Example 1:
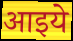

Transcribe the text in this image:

आइये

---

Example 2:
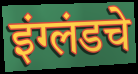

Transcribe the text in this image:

इंग्लंडचे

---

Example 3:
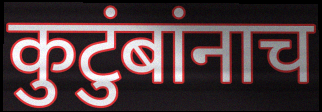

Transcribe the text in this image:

कुटुंबांनाच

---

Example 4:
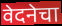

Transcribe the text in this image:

वेदनेचा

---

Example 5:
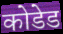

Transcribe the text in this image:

कोडेड